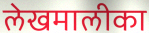
लेखमालीका